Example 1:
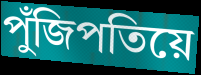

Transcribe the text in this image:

পুঁজিপতিয়ে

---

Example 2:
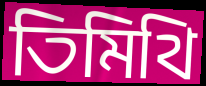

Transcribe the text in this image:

তিমিথি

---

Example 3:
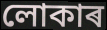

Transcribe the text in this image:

লোকাৰ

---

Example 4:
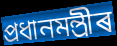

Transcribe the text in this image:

প্ৰধানমন্ত্ৰীৰ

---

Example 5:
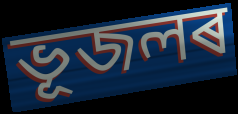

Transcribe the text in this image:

ভূজলৰ